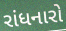
રાંધનારો